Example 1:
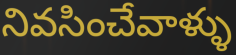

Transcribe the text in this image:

నివసించేవాళ్ళు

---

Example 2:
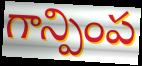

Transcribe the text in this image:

గాన్పింప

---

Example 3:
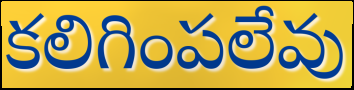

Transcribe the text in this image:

కలిగింపలేవు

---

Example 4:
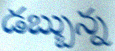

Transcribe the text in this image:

డబ్బున్న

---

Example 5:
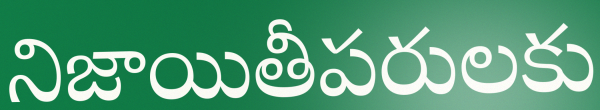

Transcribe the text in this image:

నిజాయితీపరులకు